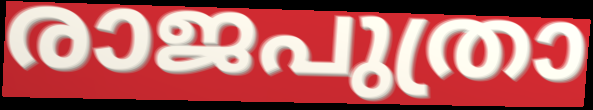
രാജപുത്രാ